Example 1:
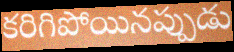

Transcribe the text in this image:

కరిగిపోయినప్పుడు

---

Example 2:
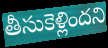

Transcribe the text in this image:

తీసుకెళ్లిందని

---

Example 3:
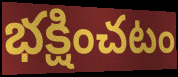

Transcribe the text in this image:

భక్షించటం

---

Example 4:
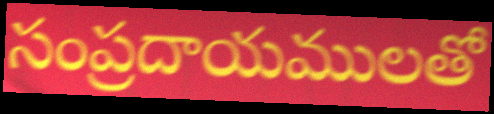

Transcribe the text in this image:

సంప్రదాయములతో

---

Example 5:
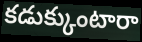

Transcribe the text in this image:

కడుక్కుంటారా